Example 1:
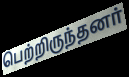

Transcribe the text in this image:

பெற்றிருந்தனர்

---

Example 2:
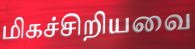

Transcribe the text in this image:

மிகச்சிறியவை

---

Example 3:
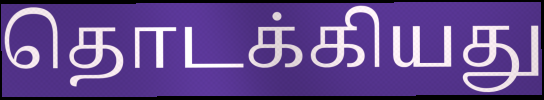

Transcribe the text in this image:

தொடக்கியது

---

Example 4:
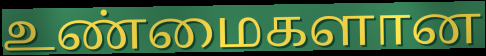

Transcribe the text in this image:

உண்மைகளான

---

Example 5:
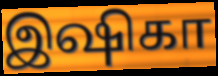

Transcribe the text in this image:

இஷிகா